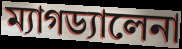
ম্যাগড্যালেনা